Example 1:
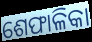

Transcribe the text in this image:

ଶେଫାଳିକା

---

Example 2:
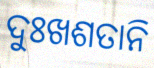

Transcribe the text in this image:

ଦୁଃଖଶତାନି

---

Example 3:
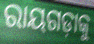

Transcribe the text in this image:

ରାୟଗଡ଼ାକୁ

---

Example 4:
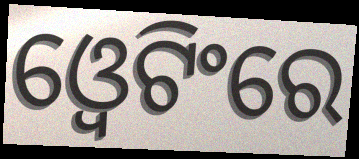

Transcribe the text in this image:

ଓ୍ୱେଟିଂରେ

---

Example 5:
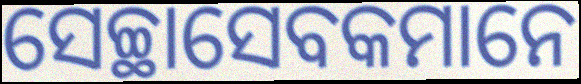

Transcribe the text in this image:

ସେଚ୍ଛାସେବକମାନେ